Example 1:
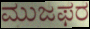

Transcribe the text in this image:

ಮುಜಫರ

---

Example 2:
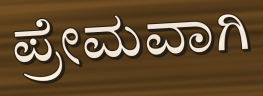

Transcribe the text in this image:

ಪ್ರೇಮವಾಗಿ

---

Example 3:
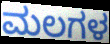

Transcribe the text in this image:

ಮಲಗಳ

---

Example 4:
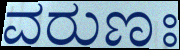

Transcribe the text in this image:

ವರುಣಃ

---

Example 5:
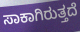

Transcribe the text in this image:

ಸಾಕಾಗಿರುತ್ತದೆ